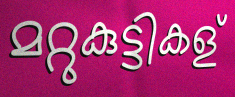
മറ്റുകുട്ടികള്